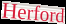
Herford